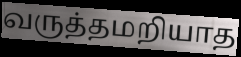
வருத்தமறியாத